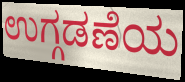
ಉಗ್ಗಡಣೆಯ